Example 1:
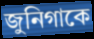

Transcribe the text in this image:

জুনিগাকে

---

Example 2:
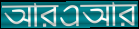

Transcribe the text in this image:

আরএআর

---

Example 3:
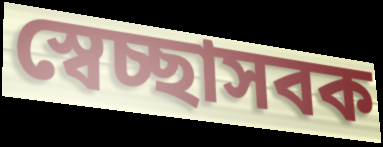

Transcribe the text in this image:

স্বেচ্ছাসবক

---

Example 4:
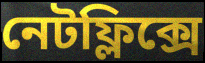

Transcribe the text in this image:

নেটফ্লিক্সে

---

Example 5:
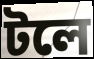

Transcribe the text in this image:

টলে